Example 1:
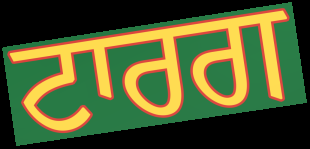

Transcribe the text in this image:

ਟਾਰਗ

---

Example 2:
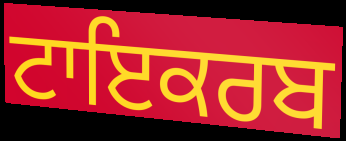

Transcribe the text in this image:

ਟਾਇਕਰਬ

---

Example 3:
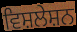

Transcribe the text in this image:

ਵਿਸ਼ਲੇਸ਼ਨ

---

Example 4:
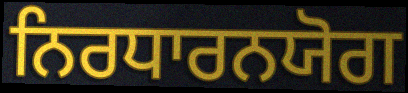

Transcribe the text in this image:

ਨਿਰਧਾਰਨਯੋਗ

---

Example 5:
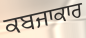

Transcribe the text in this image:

ਕਬਜਾਕਾਰ